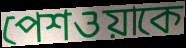
পেশওয়াকে